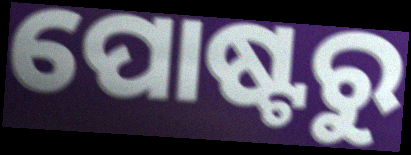
ପୋଷ୍ଟରୁ